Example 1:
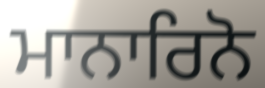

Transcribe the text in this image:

ਮਾਨਾਰਿਨੋ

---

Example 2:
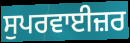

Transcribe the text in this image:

ਸੁਪਰਵਾਈਜ਼ਰ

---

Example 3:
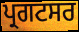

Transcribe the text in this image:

ਪ੍ਰਗਟਸਰ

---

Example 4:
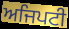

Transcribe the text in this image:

ਅਜਿਪਟੀ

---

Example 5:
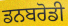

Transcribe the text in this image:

ਡਨਬਰੋਡੀ